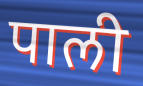
पाली